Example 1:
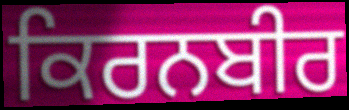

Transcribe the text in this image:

ਕਿਰਨਬੀਰ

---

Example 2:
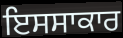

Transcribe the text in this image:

ਇਸਸਾਕਾਰ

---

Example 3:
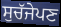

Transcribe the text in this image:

ਸੁਚੱਜੇਪਣ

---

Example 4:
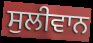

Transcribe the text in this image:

ਸੁਲੀਵਾਨ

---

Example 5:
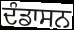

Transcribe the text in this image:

ਦੰਡਾਸਨ